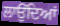
ਲਾਉਂਦਿਆਂ